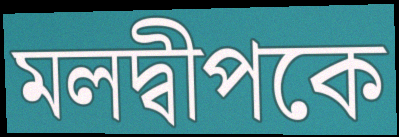
মলদ্বীপকে